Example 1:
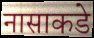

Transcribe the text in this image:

नासाकडे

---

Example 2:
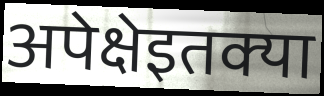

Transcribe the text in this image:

अपेक्षेइतक्या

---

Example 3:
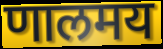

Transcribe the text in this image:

णालमय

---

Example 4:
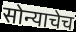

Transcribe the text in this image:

सोन्याचेच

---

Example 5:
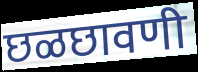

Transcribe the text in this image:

छळछावणी